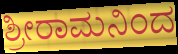
ಶ್ರೀರಾಮನಿಂದ